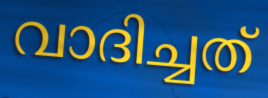
വാദിച്ചത്